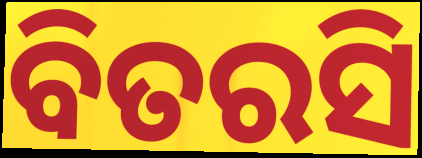
ବିତରସି